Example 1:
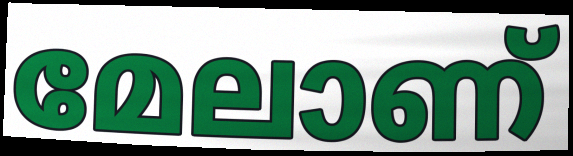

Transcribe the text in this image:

മേലാണ്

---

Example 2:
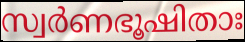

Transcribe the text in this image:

സ്വർണഭൂഷിതാഃ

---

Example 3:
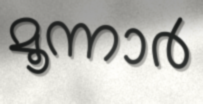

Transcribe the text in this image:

മൂന്നാർ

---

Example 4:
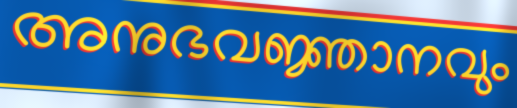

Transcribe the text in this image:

അനുഭവജ്ഞാനവും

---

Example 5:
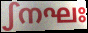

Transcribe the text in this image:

ഽനഘഃ